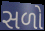
સળો